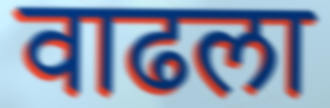
वाढला